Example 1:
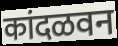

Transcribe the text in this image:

कांदळवन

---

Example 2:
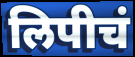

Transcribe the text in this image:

लिपीचं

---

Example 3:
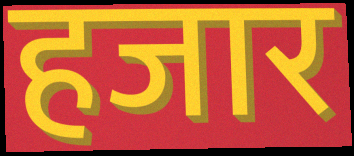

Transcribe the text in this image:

हजार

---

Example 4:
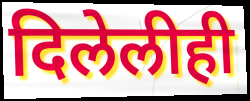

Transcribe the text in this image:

दिलेलीही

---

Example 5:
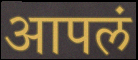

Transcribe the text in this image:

आपलं